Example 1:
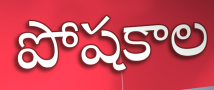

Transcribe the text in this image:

పోషకాల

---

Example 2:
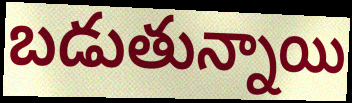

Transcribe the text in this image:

బడుతున్నాయి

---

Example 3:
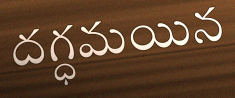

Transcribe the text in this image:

దగ్ధమయిన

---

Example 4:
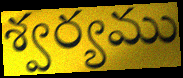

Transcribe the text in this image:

శ్వర్యము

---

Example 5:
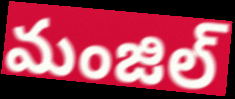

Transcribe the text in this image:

మంజిల్